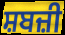
ਸ਼ਬਜ਼ੀ